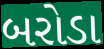
બરોડા